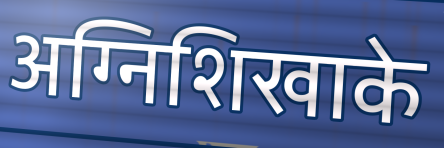
अग्निशिखाके